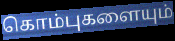
கொம்புகளையும்